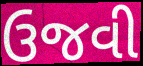
ઉજવી